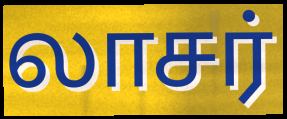
லாசர்